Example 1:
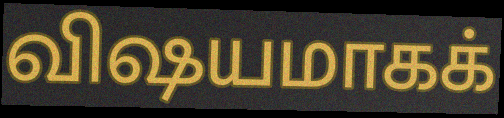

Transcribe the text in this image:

விஷயமாகக்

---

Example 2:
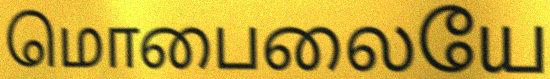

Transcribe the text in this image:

மொபைலையே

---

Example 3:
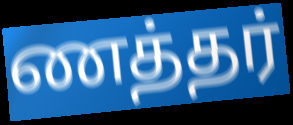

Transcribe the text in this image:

ணத்தர்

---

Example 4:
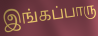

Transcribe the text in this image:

இங்கப்பாரு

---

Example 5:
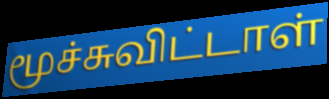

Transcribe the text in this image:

மூச்சுவிட்டாள்